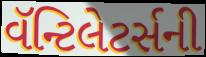
વૅન્ટિલેટર્સની